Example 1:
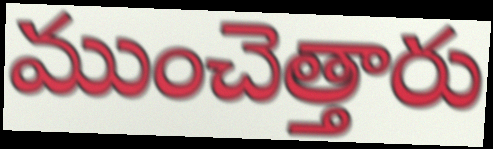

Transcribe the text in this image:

ముంచెత్తారు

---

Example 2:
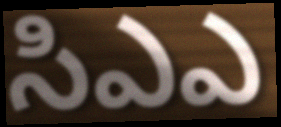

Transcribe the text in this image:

సిఎఎ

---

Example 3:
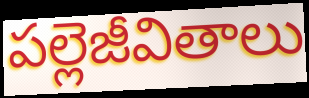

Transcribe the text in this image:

పల్లెజీవితాలు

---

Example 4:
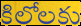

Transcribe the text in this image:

కిలోలకు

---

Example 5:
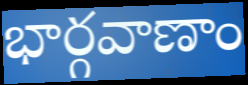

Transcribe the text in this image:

భార్గవాణాం